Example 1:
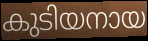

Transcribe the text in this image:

കുടിയനായ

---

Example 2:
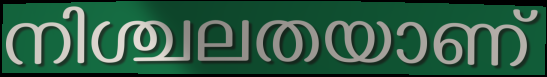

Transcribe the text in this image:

നിശ്ചലതയാണ്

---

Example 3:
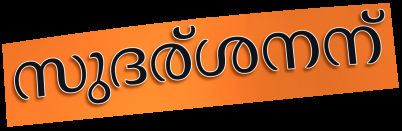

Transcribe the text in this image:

സുദര്ശനന്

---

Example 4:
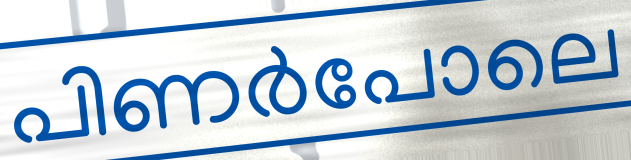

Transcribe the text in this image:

പിണർപോലെ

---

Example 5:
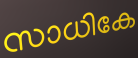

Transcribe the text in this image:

സാധികേ